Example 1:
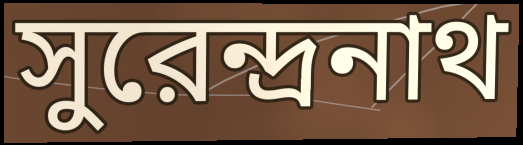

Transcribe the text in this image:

সুরেন্দ্রনাথ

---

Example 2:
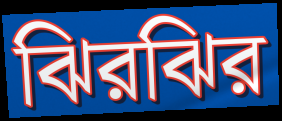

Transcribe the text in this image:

ঝিরঝির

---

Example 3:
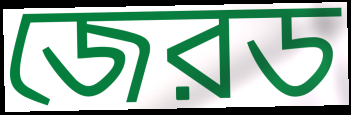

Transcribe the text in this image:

জেরড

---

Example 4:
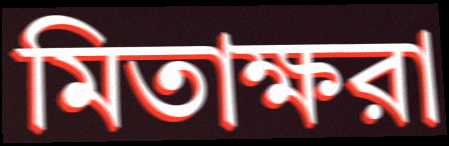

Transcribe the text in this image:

মিতাক্ষরা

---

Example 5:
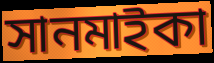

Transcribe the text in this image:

সানমাইকা